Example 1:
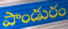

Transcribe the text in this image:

పాండురం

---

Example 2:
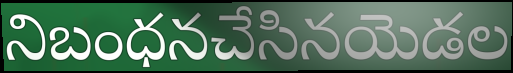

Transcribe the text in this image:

నిబంధనచేసినయెడల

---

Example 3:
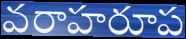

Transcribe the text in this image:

వరాహరూప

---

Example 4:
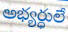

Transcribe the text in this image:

అభ్యర్ధులే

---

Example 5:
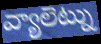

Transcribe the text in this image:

వ్యాలెట్ను